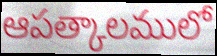
ఆపత్కాలములో